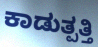
ಕಾಡುತ್ಪತ್ತಿ